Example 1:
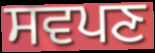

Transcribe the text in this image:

ਸਵਪਣ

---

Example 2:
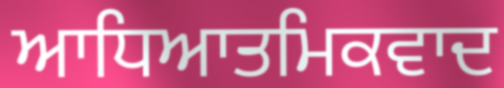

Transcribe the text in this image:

ਆਧਿਆਤਮਿਕਵਾਦ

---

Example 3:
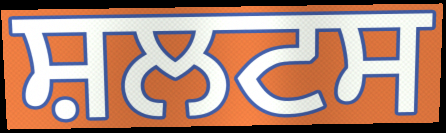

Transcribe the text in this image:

ਸ਼ਲਟਸ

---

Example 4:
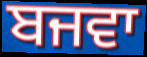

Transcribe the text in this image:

ਬਜਵਾ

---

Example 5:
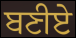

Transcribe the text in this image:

ਬਣੀਏ